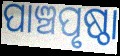
ପାଞ୍ଚପୃଷ୍ଠା